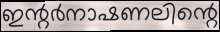
ഇന്റർനാഷണലിന്റെ